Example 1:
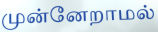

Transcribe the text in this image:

முன்னேறாமல்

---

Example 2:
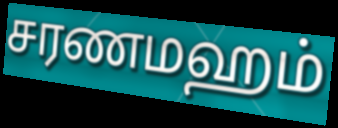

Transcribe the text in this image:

சரணமஹம்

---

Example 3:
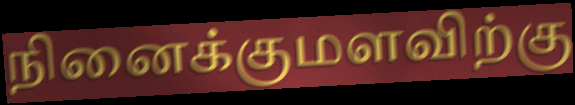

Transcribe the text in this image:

நினைக்குமளவிற்கு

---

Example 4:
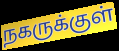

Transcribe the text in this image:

நகருக்குள்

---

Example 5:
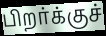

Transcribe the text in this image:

பிறர்க்குச்